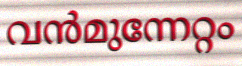
വൻമുന്നേറ്റം